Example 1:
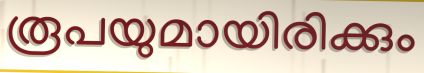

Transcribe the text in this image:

രൂപയുമായിരിക്കും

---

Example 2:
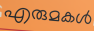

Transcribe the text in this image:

എരുമകൾ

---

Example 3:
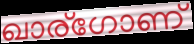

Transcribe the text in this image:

ഖാര്ഗോണ്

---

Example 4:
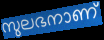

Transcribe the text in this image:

സുലഭനാണ്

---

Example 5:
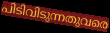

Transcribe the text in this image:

പിടിവിടുന്നതുവരെ